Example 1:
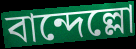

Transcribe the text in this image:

বান্দেল্লো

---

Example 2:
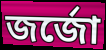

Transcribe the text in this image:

জর্জো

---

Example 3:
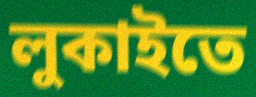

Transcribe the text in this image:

লুকাইতে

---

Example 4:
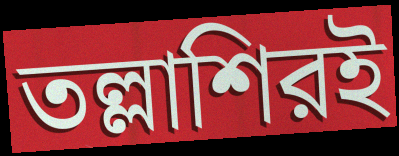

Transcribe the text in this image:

তল্লাশিরই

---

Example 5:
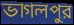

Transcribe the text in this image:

ভাগলপুর